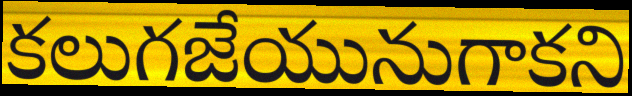
కలుగజేయునుగాకని